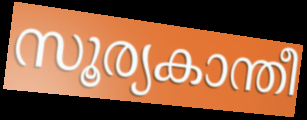
സൂര്യകാന്തീ